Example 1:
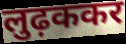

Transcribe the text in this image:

लुढ़ककर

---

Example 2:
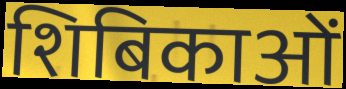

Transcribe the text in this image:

शिबिकाओं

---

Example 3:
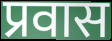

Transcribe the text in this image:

प्रवास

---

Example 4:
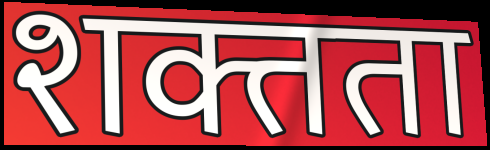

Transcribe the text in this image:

शक्तता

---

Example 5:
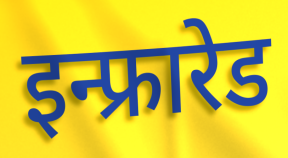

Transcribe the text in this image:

इन्फ्रारेड